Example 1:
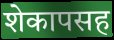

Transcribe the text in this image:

शेकापसह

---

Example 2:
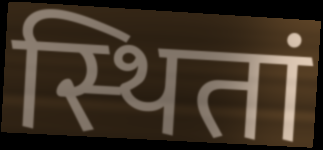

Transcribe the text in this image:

स्थितां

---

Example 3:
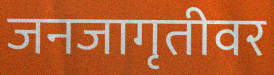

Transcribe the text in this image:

जनजागृतीवर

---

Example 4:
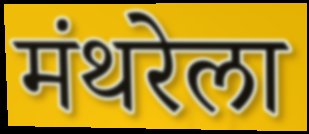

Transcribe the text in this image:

मंथरेला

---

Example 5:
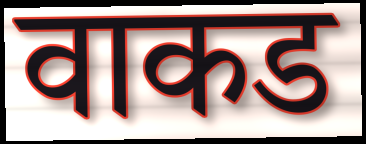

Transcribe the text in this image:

वाकड